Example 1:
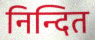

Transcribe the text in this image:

निन्दित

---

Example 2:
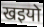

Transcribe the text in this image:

खइयो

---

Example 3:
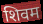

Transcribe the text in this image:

शिवम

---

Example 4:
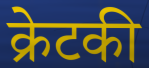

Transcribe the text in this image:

क्रेटकी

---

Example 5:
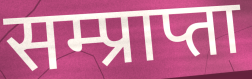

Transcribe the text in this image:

सम्प्राप्ता